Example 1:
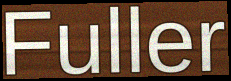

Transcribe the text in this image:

Fuller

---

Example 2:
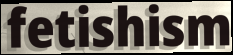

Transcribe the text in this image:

fetishism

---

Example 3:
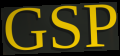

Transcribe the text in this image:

GSP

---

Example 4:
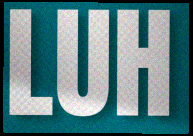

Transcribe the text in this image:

LUH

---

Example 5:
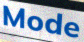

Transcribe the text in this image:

Mode